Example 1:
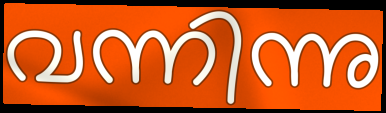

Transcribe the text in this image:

വന്നിന്നു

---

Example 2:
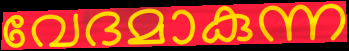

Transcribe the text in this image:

വേദമാകുന്ന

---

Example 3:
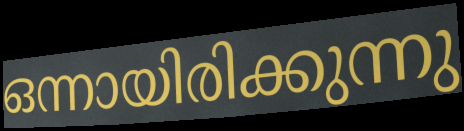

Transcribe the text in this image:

ഒന്നായിരിക്കുന്നു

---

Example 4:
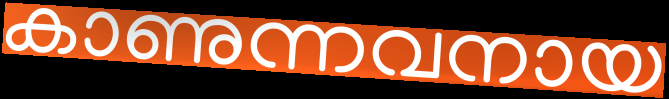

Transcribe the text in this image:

കാണുന്നവനായ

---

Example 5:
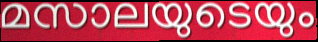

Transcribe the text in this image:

മസാലയുടെയും